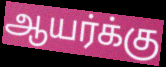
ஆயர்க்கு